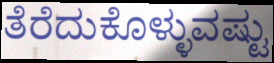
ತೆರೆದುಕೊಳ್ಳುವಷ್ಟು